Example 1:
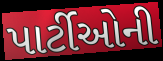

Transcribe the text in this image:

પાર્ટીઓની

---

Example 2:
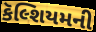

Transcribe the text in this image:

કૅલ્શિયમની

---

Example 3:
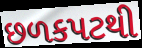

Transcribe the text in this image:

છળકપટથી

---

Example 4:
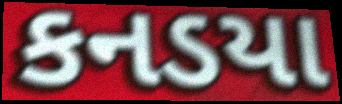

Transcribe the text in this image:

કનડયા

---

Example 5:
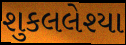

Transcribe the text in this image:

શુકલલેશ્યા